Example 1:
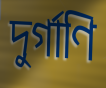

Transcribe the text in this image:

দুর্গাণি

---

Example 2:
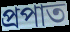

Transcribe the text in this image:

প্রপাত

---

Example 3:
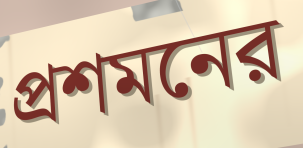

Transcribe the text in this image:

প্রশমনের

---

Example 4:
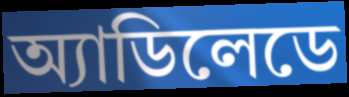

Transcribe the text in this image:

অ্যাডিলেডে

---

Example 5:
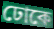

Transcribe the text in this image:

ঢোকে